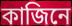
কাজিনে